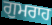
ਗੁਮਰਾਹ